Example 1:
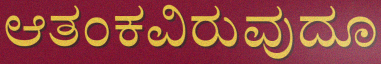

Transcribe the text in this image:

ಆತಂಕವಿರುವುದೂ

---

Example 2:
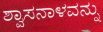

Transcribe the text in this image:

ಶ್ವಾಸನಾಳವನ್ನು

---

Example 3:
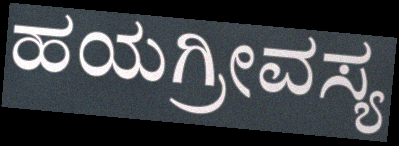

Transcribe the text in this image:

ಹಯಗ್ರೀವಸ್ಯ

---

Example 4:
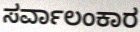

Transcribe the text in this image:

ಸರ್ವಾಲಂಕಾರ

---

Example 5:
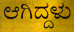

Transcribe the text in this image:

ಆಗಿದ್ದಳು